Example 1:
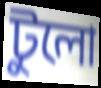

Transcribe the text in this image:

টুলো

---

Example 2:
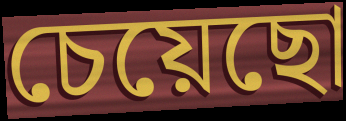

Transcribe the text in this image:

চেয়েছো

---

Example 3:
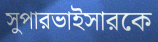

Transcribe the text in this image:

সুপারভাইসারকে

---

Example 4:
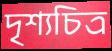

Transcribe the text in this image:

দৃশ্যচিত্র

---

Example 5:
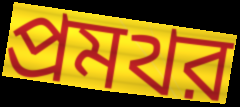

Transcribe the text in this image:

প্রমথর